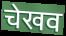
चेखव